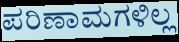
ಪರಿಣಾಮಗಳಿಲ್ಲ